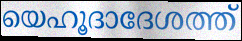
യെഹൂദാദേശത്ത്